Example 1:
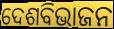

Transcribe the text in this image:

ଦେଶବିଭାଜନ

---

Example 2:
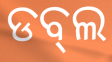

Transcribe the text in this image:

ଡବ୍‌ଲ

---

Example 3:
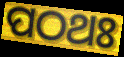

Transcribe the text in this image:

ପଠଥଃ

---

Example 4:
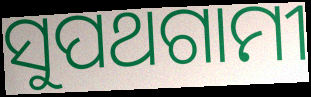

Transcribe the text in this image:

ସୁପଥଗାମୀ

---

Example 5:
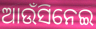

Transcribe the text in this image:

ଆଉଁସିନେଇ